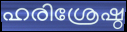
ഹരിശ്രേഷ്ഠ